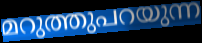
മറുത്തുപറയുന്ന